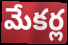
మేకర్ల